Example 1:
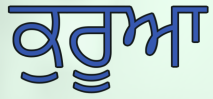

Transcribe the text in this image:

ਕੁਰੂਆ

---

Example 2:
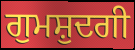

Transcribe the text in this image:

ਗੁਮਸ਼ੁਦਗੀ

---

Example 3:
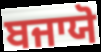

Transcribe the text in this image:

ਬਜਾਯੋ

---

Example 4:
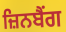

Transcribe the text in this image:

ਜ਼ਿਨਬੈਂਗ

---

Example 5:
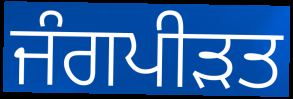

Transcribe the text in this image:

ਜੰਗਪੀੜਤ